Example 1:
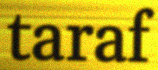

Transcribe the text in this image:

taraf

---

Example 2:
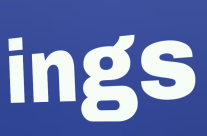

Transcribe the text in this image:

ings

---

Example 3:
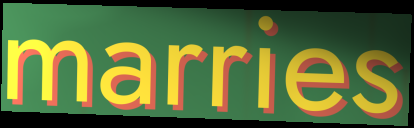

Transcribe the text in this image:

marries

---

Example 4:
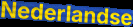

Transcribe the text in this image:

Nederlandse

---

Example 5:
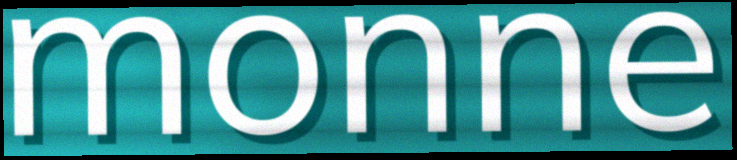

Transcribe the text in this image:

monne